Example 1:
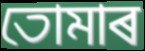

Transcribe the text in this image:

তোমাৰ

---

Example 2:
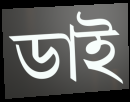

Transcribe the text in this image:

ডাই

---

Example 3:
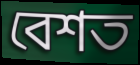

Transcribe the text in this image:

বেশত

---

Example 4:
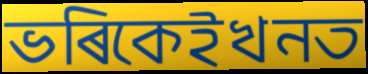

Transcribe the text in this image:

ভৰিকেইখনত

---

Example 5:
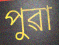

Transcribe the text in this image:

পুৱা